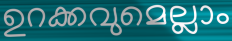
ഉറക്കവുമെല്ലാം